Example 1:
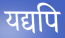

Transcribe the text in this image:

यद्यपि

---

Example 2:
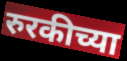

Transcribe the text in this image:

रुरकीच्या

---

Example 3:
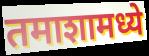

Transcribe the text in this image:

तमाशामध्ये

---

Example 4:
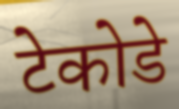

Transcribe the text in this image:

टेकोडे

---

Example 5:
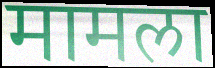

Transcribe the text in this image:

मामला